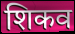
शिकव